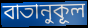
বাতানুকূল